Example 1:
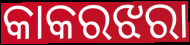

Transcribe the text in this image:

କାକରଝରା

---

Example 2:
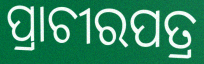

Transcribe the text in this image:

ପ୍ରାଚୀରପତ୍ର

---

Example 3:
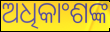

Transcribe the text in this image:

ଅଧିକାଂଶଙ୍କ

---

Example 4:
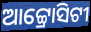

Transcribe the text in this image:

ଆଟ୍ଟ୍ରୋସିଟୀ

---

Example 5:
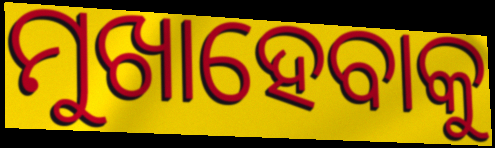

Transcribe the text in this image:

ମୁଖାହେବାକୁ